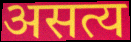
असत्य